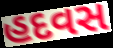
હદવસ